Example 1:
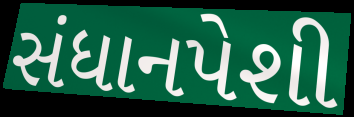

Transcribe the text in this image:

સંધાનપેશી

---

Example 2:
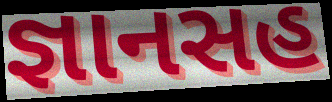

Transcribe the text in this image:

જ્ઞાનસહ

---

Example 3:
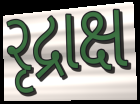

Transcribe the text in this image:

રૃદ્રાક્ષ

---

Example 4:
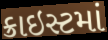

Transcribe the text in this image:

ક્રાઇસ્ટમાં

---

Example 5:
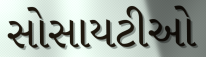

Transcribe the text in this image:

સોસાયટીઓ